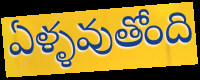
ఏళ్ళవుతోంది